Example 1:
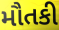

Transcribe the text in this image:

મૌતકી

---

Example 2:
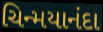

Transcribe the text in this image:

ચિન્મયાનંદા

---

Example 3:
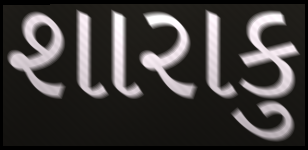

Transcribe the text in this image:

શારાકુ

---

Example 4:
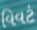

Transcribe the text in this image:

વિવટં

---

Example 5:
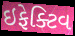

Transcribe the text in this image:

ઇફેક્ટિવ